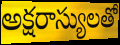
అక్షరాస్యులతో